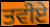
ਤਵੀਏ